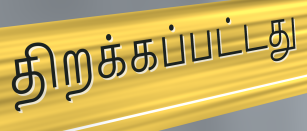
திறக்கப்பட்டது